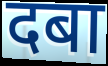
दबा